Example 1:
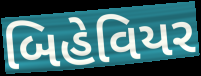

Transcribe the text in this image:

બિહેવિયર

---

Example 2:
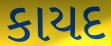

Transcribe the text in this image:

કાયદ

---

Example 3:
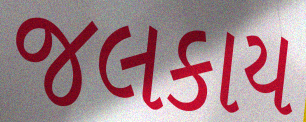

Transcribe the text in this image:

જલકાય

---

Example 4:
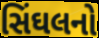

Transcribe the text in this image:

સિંઘલનો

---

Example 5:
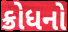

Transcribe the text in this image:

ક્રોધનો